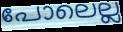
പോലെല്ല